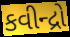
કવીન્દ્રો